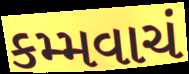
કમ્મવાચં